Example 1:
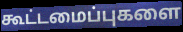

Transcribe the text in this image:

கூட்டமைப்புகளை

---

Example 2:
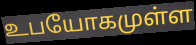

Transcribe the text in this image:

உபயோகமுள்ள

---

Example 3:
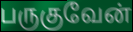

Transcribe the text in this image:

பருகுவேன்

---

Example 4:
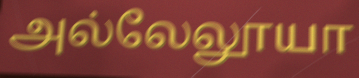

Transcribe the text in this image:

அல்லேலூயா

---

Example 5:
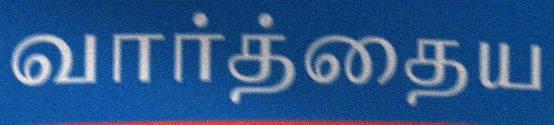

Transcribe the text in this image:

வார்த்தைய